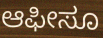
ಆಫೀಸೂ